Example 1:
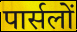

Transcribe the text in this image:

पार्सलों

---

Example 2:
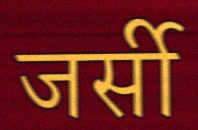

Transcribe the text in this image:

जर्सी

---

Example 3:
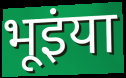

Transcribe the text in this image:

भूइंया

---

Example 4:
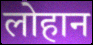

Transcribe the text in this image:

लोहान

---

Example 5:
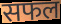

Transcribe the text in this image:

सफल